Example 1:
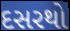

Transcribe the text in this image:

દસરથો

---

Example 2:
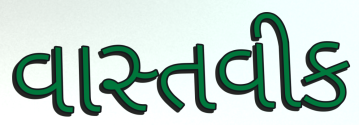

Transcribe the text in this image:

વાસ્તવીક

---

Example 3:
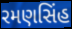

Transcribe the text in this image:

રમણસિંહ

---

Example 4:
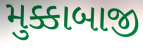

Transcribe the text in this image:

મુક્કાબાજી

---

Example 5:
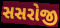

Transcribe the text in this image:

સસરોજી